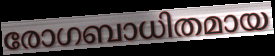
രോഗബാധിതമായ